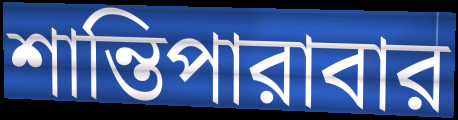
শান্তিপারাবার